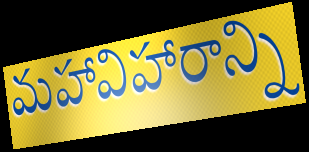
మహావిహారాన్ని